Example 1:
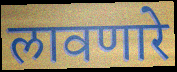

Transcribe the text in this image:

लावणारे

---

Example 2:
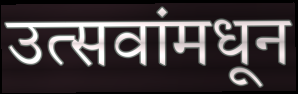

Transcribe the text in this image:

उत्सवांमधून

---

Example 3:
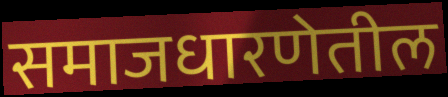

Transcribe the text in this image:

समाजधारणेतील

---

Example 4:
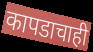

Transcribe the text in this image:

कापडाचाही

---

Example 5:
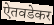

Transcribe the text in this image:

ऐतवडेकर